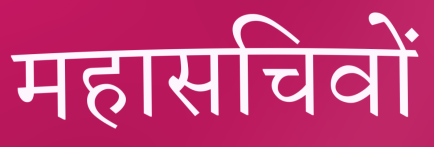
महासचिवों